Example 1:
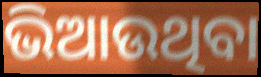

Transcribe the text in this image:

ଭିଆଉଥିବା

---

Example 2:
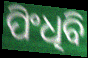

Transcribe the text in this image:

ପିଂଧିବି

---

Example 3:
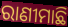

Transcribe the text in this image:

ରାଣୀମାଛି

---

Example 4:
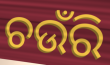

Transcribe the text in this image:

ଚଉଁରି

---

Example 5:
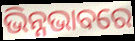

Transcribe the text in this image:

ଭିନ୍ନଭାବରେ